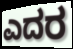
ಎದರ